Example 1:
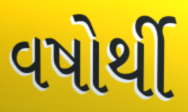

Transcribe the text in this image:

વષોર્થી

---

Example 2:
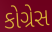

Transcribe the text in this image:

કોગ્રેસ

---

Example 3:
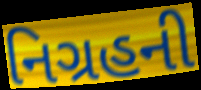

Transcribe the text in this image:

નિગ્રહની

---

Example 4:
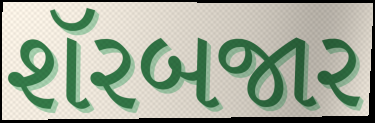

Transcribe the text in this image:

શૅરબજાર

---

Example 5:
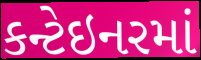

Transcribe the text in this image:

કન્ટેઇનરમાં